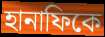
হানাফিকে